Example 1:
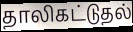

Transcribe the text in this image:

தாலிகட்டுதல்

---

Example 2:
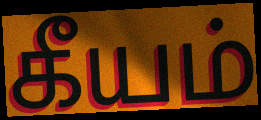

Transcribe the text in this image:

கீயம்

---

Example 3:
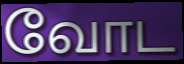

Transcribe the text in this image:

வோட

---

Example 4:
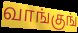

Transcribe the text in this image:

வாங்குங்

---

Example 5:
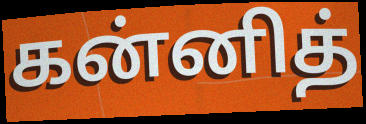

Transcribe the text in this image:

கன்னித்